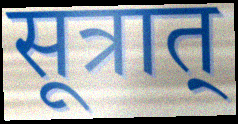
सूत्रात्